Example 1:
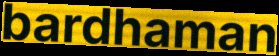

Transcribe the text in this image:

bardhaman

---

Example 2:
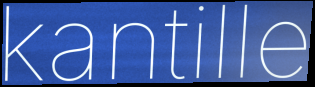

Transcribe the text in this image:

kantille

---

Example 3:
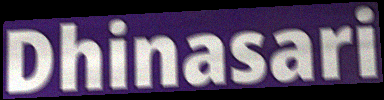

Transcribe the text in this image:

Dhinasari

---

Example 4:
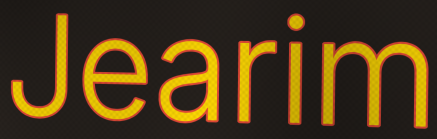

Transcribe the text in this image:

Jearim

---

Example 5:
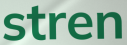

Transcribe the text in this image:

stren